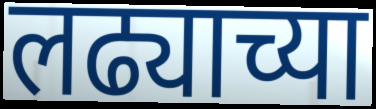
लढ्याच्या